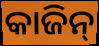
କାଜିନ୍